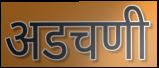
अडचणी